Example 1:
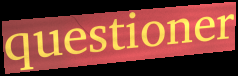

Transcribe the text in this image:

questioner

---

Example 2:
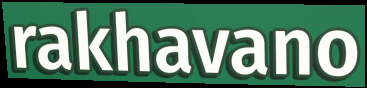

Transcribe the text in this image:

rakhavano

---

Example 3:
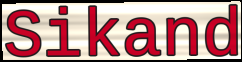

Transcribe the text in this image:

Sikand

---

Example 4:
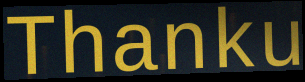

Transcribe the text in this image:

Thanku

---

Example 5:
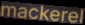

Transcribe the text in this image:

mackerel